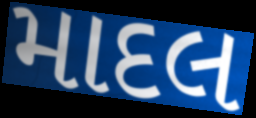
માદલ